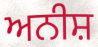
ਅਨੀਸ਼